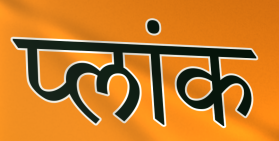
प्लांक